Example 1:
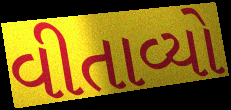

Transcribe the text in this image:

વીતાવ્યો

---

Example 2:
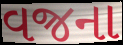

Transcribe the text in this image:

વજ્રના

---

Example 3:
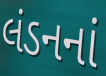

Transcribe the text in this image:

લંડનનાં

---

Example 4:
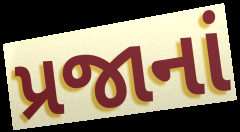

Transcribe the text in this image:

પ્રજાનાં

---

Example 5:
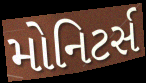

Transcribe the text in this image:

મોનિટર્સ